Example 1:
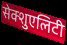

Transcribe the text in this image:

सेक्शुएलिटी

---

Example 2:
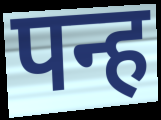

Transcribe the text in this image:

पन्ह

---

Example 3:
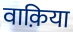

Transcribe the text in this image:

वाक़िया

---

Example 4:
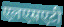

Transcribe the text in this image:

एलएसएटी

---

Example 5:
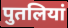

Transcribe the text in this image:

पुतलियां